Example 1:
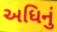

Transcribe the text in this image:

અધિનું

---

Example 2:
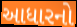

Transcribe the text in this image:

આધારનો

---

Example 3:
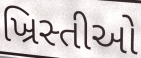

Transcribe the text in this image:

ખ્રિસ્તીઓ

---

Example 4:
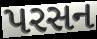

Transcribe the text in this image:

પરસન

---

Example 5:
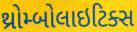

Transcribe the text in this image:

થ્રોમ્બોલાઇટિક્સ